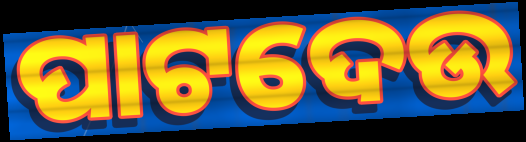
ପାଟଦେଉ